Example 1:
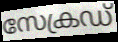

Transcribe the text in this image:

സേക്രഡ്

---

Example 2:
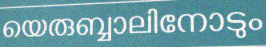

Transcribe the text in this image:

യെരുബ്ബാലിനോടും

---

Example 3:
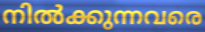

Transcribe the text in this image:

നിൽക്കുന്നവരെ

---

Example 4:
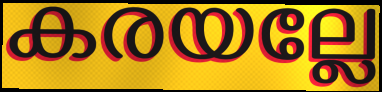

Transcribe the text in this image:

കരയല്ലേ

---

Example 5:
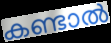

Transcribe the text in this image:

കണ്ടാൽ